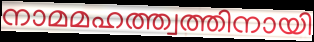
നാമമഹത്ത്വത്തിനായി